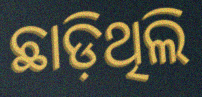
ଛାଡ଼ିଥିଲି